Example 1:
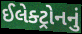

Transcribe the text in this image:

ઈલેક્ટ્રોનનું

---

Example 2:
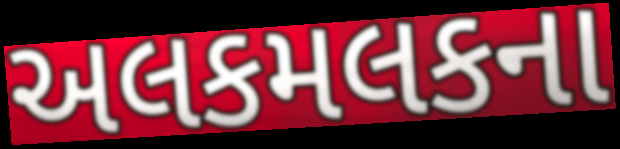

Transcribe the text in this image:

અલકમલકના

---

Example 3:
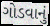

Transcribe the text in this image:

ગોડવાનું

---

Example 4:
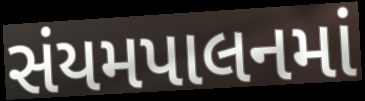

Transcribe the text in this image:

સંયમપાલનમાં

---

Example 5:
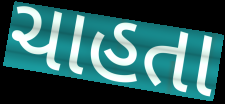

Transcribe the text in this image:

ચાહતા